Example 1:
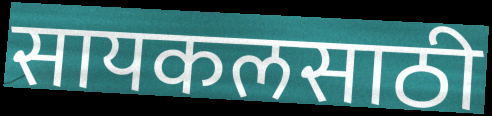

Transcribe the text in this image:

सायकलसाठी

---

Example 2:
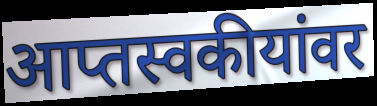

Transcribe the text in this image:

आप्तस्वकीयांवर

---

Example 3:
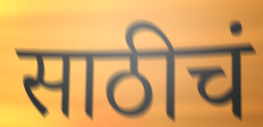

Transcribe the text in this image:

साठीचं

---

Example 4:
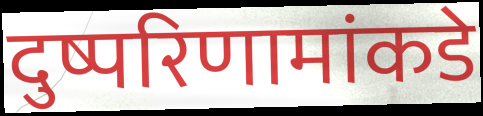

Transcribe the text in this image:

दुष्परिणामांकडे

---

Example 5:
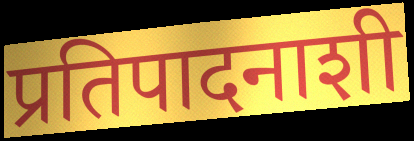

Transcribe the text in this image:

प्रतिपादनाशी